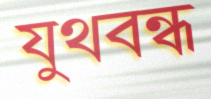
যুথবন্ধ